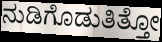
ನುಡಿಗೊಡುತಿತ್ತೋ